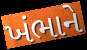
ખંભાને